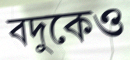
বদুকেও